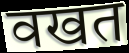
वखत